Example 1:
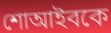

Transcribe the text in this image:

শোআইবকে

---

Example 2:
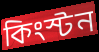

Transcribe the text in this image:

কিংস্টন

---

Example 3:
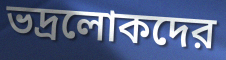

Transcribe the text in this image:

ভদ্রলোকদের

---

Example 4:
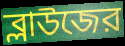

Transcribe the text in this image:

ব্লাউজের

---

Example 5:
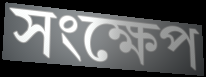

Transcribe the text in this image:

সংক্ষেপ